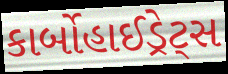
કાર્બોહાઈડ્રેટ્સ